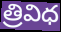
త్రివిధ